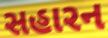
સહારન